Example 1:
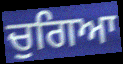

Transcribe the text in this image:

ਚੁਗਿਆ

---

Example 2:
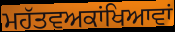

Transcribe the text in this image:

ਮਹੱਤਵਅਕਾਂਖਿਆਵਾਂ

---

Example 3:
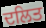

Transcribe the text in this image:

ਦਲਿਤ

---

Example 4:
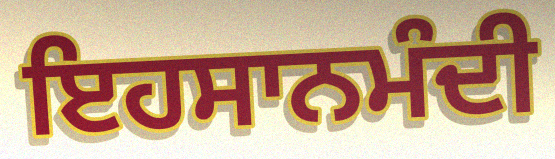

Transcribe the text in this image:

ਇਹਸਾਨਮੰਦੀ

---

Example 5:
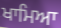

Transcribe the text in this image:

ਖਾਮਿਆ